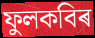
ফুলকবিৰ